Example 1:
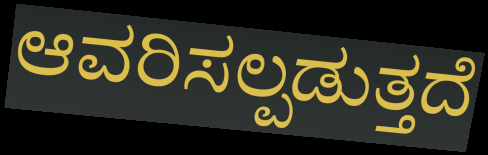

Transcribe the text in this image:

ಆವರಿಸಲ್ಪಡುತ್ತದೆ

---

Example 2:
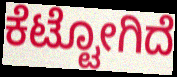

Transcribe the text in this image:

ಕೆಟ್ಟೋಗಿದೆ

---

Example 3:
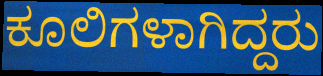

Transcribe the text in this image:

ಕೂಲಿಗಳಾಗಿದ್ದರು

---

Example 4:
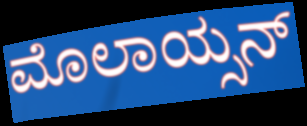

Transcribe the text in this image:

ಮೊಲಾಯ್ಸನ್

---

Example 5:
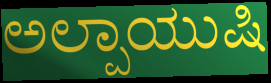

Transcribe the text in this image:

ಅಲ್ಪಾಯುಷಿ